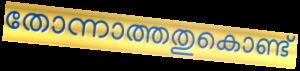
തോന്നാത്തതുകൊണ്ട്